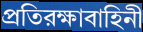
প্রতিরক্ষাবাহিনী